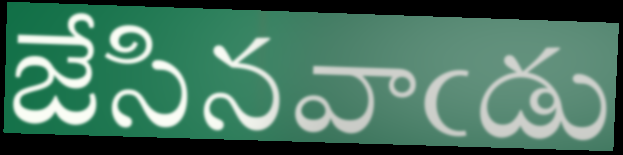
జేసినవాఁడు